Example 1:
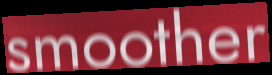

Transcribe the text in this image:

smoother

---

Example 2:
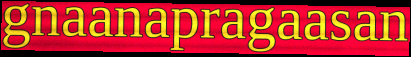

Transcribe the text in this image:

gnaanapragaasan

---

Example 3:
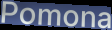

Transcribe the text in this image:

Pomona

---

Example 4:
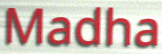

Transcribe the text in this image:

Madha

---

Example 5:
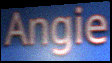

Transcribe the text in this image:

Angie